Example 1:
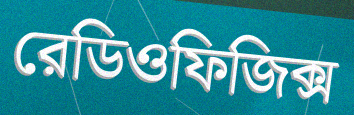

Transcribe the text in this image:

রেডিওফিজিক্স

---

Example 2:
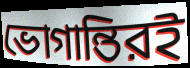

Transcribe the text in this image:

ভোগান্তিরই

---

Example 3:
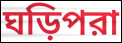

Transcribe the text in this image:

ঘড়িপরা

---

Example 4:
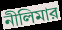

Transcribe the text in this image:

নীলিমার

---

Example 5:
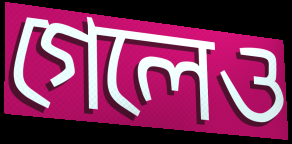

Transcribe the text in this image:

গেলেও